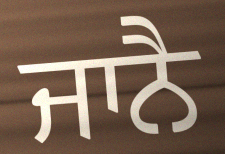
ਜਾਨੈ